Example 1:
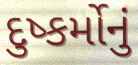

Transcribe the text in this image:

દુષ્કર્મોનું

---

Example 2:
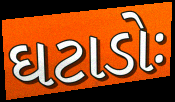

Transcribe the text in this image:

ઘટાડોઃ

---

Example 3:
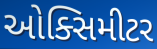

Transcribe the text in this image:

ઓક્સિમીટર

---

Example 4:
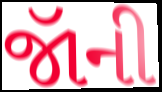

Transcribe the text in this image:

જૉની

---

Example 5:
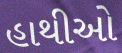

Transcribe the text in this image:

હાથીઓ